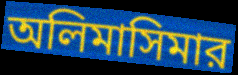
অলিমাসিমার